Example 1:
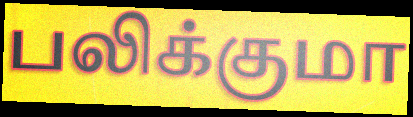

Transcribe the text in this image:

பலிக்குமா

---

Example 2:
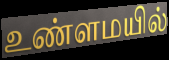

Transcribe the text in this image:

உண்ளமயில்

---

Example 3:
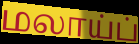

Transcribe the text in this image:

மலாய்ப்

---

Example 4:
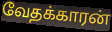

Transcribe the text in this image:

வேதக்காரன்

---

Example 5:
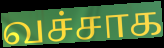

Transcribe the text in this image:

வச்சாக